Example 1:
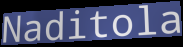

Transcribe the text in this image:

Naditola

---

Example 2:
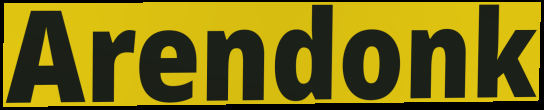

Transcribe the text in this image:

Arendonk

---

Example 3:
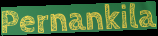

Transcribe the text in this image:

Pernankila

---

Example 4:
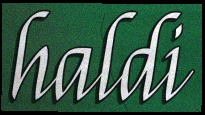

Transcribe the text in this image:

haldi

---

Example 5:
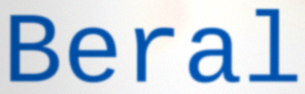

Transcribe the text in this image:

Beral